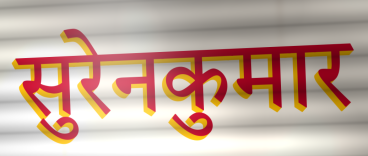
सुरेनकुमार